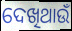
ଦେଖିଥାଉଁ